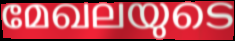
മേഖലയുടെ